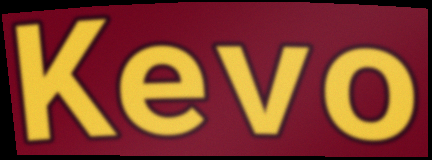
Kevo